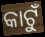
କାଟୁଁ